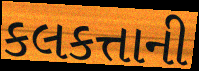
કલકત્તાની